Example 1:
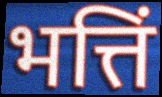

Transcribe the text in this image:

भत्तिं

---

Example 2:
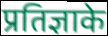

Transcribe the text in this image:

प्रतिज्ञाके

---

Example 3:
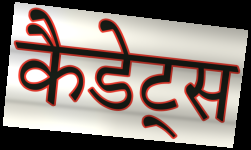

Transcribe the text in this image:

कैडेट्स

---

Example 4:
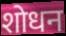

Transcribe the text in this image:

शोधन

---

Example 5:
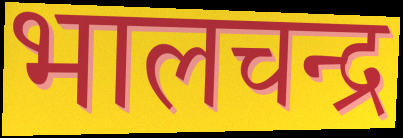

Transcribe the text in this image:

भालचन्द्र